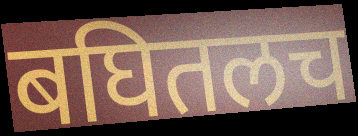
बघितलच